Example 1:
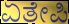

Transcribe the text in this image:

ಏತೇಪಿ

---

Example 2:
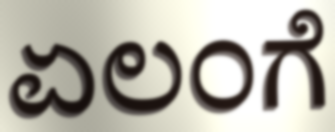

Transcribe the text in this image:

ಏಲಂಗೆ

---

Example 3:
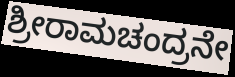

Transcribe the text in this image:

ಶ್ರೀರಾಮಚಂದ್ರನೇ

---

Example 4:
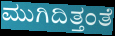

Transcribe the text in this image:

ಮುಗಿದಿತ್ತಂತೆ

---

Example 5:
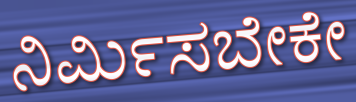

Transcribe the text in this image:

ನಿರ್ಮಿಸಬೇಕೇ